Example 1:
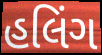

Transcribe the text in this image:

હલિંગ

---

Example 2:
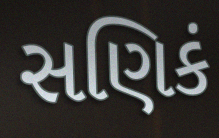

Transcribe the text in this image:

સણિકં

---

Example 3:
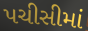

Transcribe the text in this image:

પચીસીમાં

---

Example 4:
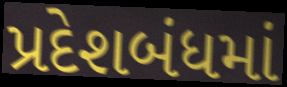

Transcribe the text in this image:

પ્રદેશબંધમાં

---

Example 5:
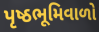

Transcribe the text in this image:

પૃષ્ઠભૂમિવાળો